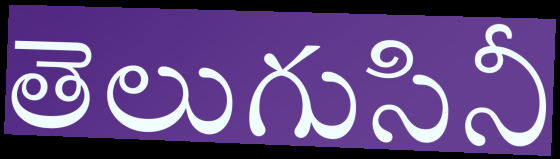
తెలుగుసినీ